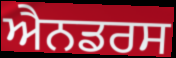
ਐਨਡਰਸ